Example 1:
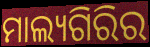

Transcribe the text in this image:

ମାଲ୍ୟଗିରିର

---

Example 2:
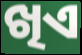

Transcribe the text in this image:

ଖିଏ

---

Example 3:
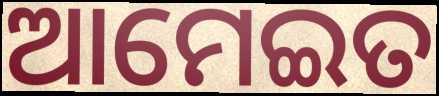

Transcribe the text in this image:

ଆମେଇତ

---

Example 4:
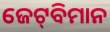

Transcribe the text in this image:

ଜେଟ୍‌ବିମାନ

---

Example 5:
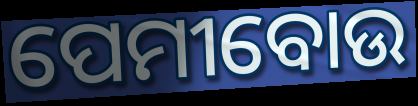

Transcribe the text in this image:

ପେମୀବୋଉ